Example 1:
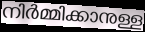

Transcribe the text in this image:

നിർമ്മിക്കാനുള്ള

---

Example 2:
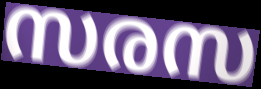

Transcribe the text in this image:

സരസ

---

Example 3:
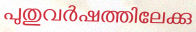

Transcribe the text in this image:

പുതുവർഷത്തിലേക്കു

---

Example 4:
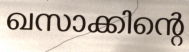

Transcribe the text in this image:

ഖസാക്കിന്റെ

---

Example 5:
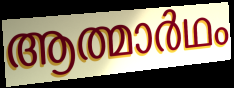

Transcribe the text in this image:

ആത്മാർഥം